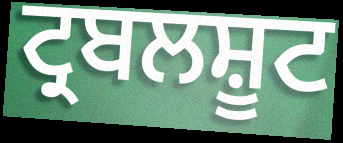
ਟ੍ਰਬਲਸ਼ੂਟ